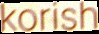
korish